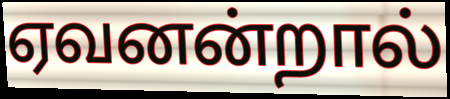
ஏவனன்றால்